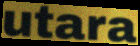
utara